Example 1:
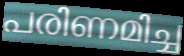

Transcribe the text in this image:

പരിണമിച്ച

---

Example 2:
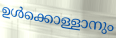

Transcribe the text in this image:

ഉൾക്കൊള്ളാനും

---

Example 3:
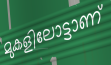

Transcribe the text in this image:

മുകളിലോട്ടാണ്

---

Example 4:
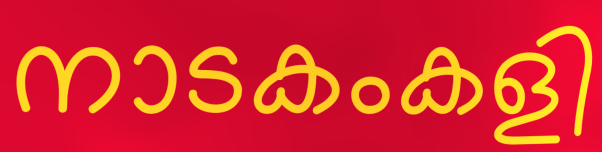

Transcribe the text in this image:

നാടകംകളി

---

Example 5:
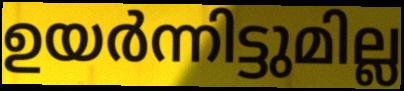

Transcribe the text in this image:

ഉയർന്നിട്ടുമില്ല